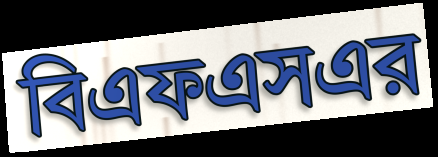
বিএফএসএর